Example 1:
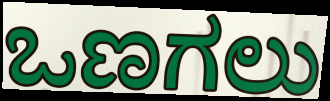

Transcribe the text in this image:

ಒಣಗಲು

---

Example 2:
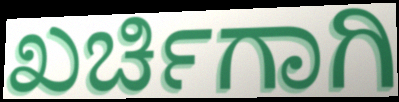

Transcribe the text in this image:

ಖರ್ಚಿಗಾಗಿ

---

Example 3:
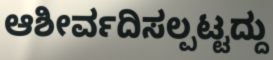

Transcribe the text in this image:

ಆಶೀರ್ವದಿಸಲ್ಪಟ್ಟದ್ದು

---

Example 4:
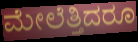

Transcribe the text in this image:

ಮೇಲೆತ್ತಿದರೂ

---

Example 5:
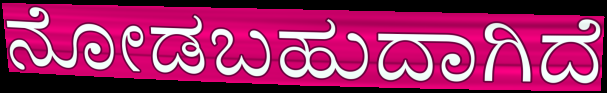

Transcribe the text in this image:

ನೋಡಬಹುದಾಗಿದೆ